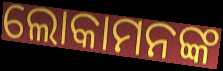
ଲୋକାମନଙ୍କ